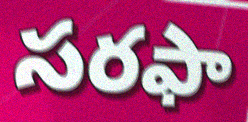
సరఫా